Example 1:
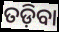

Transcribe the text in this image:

ତଡ଼ିବା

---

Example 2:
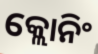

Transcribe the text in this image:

କ୍ଲୋନିଂ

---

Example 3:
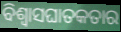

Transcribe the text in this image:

ବିଶ୍ୱାସଘାତକତାର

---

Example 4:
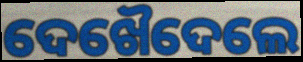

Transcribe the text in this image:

ଦେଖୈଦେଲେ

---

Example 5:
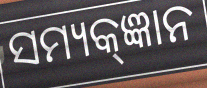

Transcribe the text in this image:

ସମ୍ୟକ୍‌ଜ୍ଞାନ